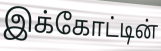
இக்கோட்டின்